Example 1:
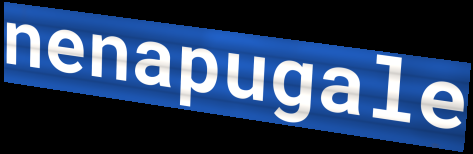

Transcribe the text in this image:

nenapugale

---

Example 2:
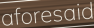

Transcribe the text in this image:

aforesaid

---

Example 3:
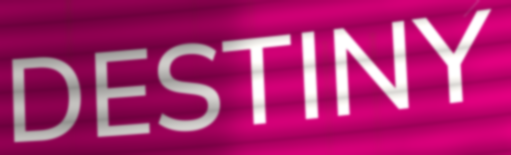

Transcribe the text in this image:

DESTINY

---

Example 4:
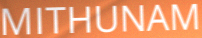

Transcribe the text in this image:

MITHUNAM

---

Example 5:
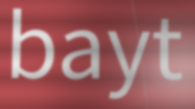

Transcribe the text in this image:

bayt